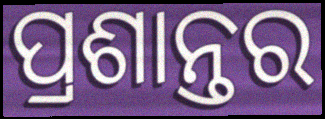
ପ୍ରଶାନ୍ତର